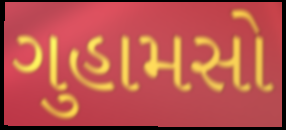
ગુહામસો